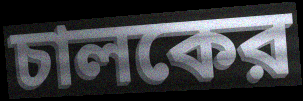
চালকের